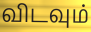
விடவும்